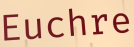
Euchre